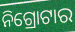
ନିଗ୍ରୋଟାର